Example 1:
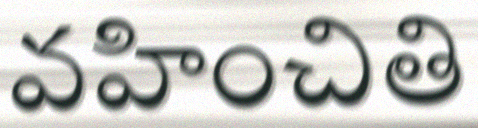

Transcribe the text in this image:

వహించితి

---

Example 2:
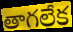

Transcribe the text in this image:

తాగలేక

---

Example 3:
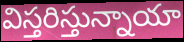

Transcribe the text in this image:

విస్తరిస్తున్నాయా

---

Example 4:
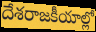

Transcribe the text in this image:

దేశరాజకీయాల్లో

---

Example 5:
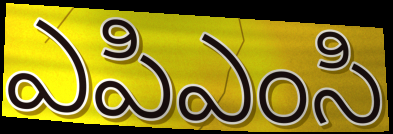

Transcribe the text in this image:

ఎపిఎంసి